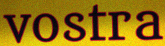
vostra